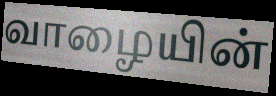
வாழையின்